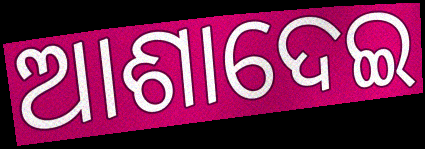
ଆଶାଦେଇ